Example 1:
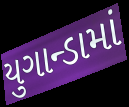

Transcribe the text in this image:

યુગાન્ડામાં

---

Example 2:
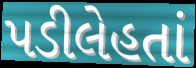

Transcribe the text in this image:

પડીલેહતાં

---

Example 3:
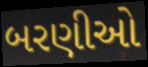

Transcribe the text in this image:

બરણીઓ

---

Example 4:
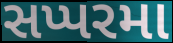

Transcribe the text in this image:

સપ્પરમા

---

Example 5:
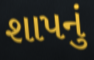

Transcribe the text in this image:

શાપનું